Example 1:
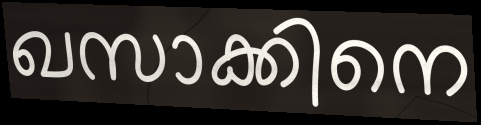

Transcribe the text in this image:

ഖസാക്കിനെ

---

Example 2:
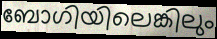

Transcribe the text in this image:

ബോഗിയിലെങ്കിലും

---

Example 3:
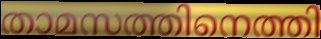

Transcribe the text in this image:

താമസത്തിനെത്തി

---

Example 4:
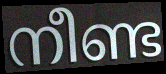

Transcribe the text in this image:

നീണ്ട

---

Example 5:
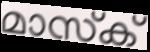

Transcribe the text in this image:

മാസ്‌ക്